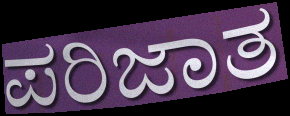
ಪರಿಜಾತ